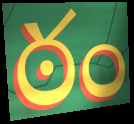
ఠం